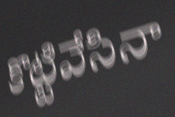
కొట్టివేసినా